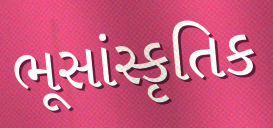
ભૂસાંસ્કૃતિક